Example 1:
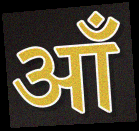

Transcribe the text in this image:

आँ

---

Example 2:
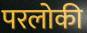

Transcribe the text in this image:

परलोकी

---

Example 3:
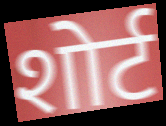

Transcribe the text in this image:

शोर्ट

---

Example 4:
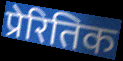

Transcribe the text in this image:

प्रेरितिक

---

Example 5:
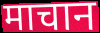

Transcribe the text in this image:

माचान